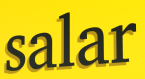
salar